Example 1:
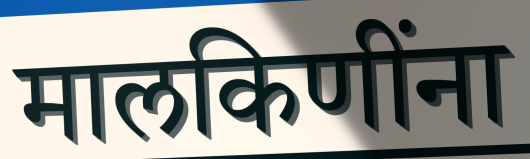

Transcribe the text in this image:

मालकिणींना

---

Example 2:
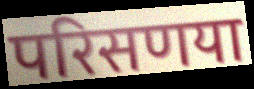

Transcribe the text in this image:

परिसणया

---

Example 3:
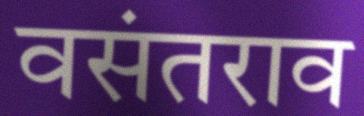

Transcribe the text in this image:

वसंतराव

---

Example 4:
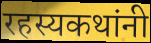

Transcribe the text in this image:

रहस्यकथांनी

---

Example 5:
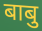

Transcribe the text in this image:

बाबु